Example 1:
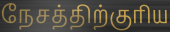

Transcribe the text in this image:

நேசத்திற்குரிய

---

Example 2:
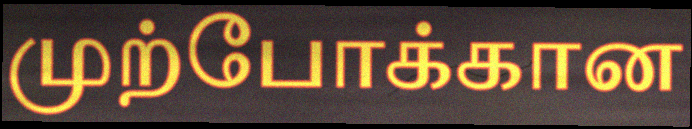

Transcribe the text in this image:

முற்போக்கான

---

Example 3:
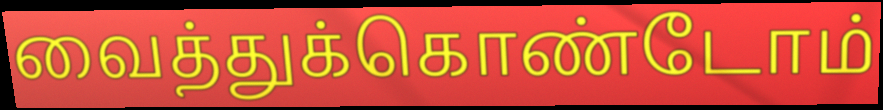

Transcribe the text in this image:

வைத்துக்கொண்டோம்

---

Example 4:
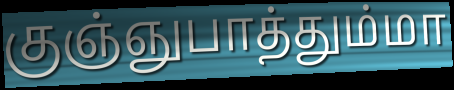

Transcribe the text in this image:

குஞ்ஞுபாத்தும்மா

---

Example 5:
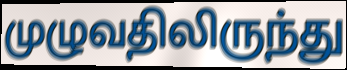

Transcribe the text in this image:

முழுவதிலிருந்து